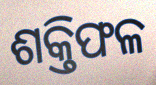
ଶକ୍ତିଫଳ